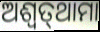
ଅଶ୍ବତ୍‌ଥାମା